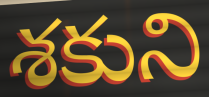
శకుని